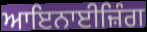
ਆਇਨਾਈਜ਼ਿੰਗ